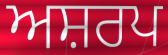
ਅਸ਼ਰਪ